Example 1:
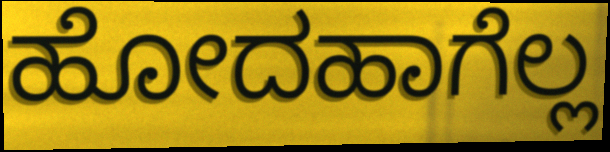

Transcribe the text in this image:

ಹೋದಹಾಗೆಲ್ಲ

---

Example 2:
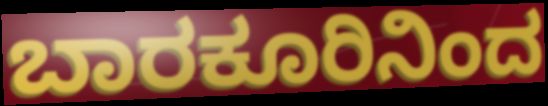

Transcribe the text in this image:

ಬಾರಕೂರಿನಿಂದ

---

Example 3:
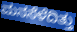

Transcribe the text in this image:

ಮನಸೆಳೆದಿತ್ತು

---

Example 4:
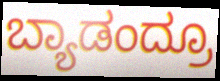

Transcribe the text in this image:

ಬ್ಯಾಡಂದ್ರೂ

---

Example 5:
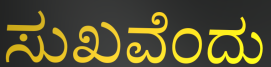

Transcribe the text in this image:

ಸುಖವೆಂದು